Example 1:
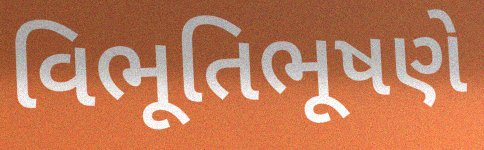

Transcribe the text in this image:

વિભૂતિભૂષણે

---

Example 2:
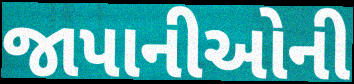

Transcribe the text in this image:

જાપાનીઓની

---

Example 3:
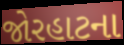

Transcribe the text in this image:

જોરહાટના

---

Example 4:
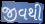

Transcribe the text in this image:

જીવથી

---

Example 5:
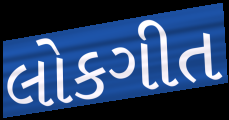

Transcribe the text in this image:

લોકગીત